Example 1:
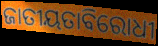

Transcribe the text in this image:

ଜାତୀୟତାବିରୋଧୀ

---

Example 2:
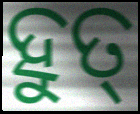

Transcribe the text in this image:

ହୁତ୍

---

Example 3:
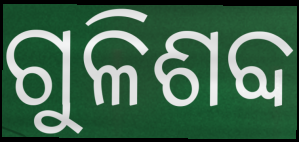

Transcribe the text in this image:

ଗୁଳିଶବ୍ଦ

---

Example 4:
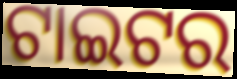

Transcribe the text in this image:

ଟାଇଟର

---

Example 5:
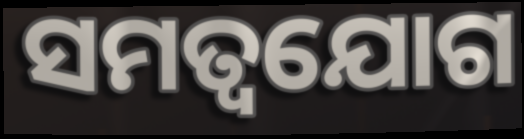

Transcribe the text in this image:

ସମତ୍ୱଯୋଗ